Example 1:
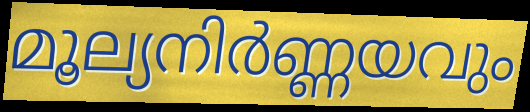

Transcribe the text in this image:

മൂല്യനിർണ്ണയവും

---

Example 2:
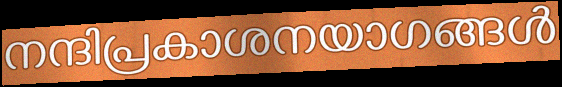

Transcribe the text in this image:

നന്ദിപ്രകാശനയാഗങ്ങൾ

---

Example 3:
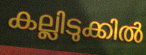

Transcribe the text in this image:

കല്ലിടുക്കിൽ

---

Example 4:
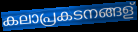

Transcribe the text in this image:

കലാപ്രകടനങ്ങള്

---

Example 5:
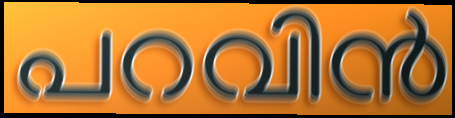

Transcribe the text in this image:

പറവിൻ